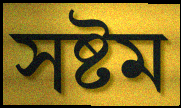
সষ্টম